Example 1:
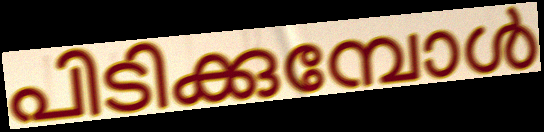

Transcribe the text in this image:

പിടിക്കുമ്പോൾ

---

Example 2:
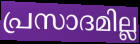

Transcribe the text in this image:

പ്രസാദമില്ല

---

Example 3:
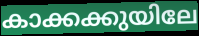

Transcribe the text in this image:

കാക്കക്കുയിലേ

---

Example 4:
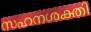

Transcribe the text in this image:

സഹനശക്തി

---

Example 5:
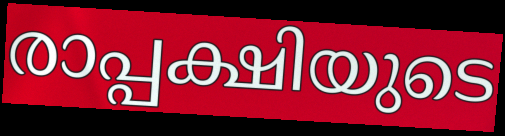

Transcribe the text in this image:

രാപ്പക്ഷിയുടെ